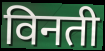
विनती